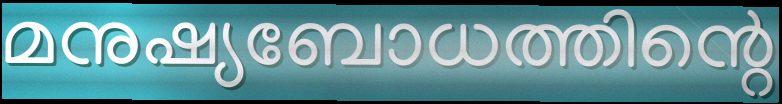
മനുഷ്യബോധത്തിന്റെ